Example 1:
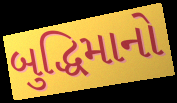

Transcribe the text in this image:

બુદ્ધિમાનો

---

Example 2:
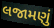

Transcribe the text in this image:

લજામણું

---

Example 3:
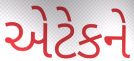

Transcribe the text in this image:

એટેકને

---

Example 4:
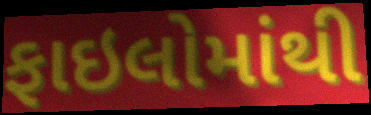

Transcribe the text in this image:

ફાઇલોમાંથી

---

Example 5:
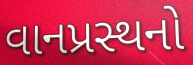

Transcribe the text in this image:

વાનપ્રસ્થનો